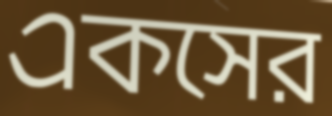
একসের